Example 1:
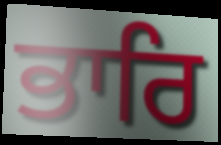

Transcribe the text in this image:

ਭਾਰਿ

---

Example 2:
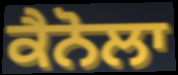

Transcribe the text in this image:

ਕੈਨੋਲਾ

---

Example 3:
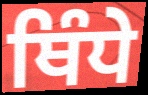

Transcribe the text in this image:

ਥਿੰਧੇ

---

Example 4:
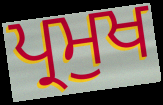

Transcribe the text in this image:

ਪ੍ਰਮੁਖ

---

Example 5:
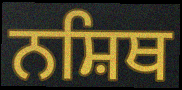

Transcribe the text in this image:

ਨਸ਼ਿਥ